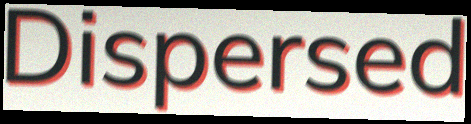
Dispersed